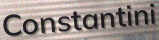
Constantini